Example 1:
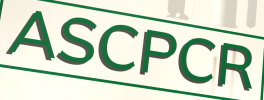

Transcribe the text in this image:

ASCPCR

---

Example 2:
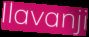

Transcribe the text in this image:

Ilavanji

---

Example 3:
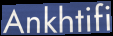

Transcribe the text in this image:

Ankhtifi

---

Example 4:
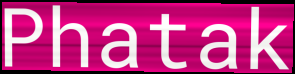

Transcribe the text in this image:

Phatak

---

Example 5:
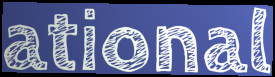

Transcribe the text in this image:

ational